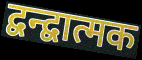
द्वन्द्वात्मक